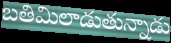
బతిమిలాడుతున్నాడు